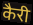
कैरी